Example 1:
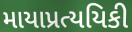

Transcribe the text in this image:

માયાપ્રત્યયિકી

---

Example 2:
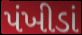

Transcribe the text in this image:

પંખીડાં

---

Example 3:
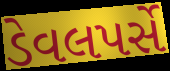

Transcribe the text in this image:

ડેવલપર્સે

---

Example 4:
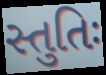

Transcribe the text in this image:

સ્તુતિઃ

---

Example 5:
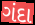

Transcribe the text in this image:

ગંદા